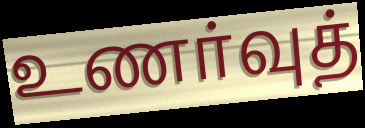
உணர்வுத்